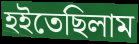
হইতেছিলাম